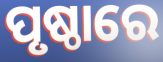
ପୃଷ୍ଠାରେ